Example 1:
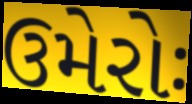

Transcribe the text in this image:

ઉમેરોઃ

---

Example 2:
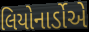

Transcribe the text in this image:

લિયોનાર્ડોએ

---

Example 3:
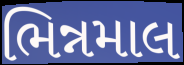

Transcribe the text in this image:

ભિન્નમાલ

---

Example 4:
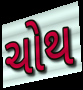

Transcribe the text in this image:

ચોથ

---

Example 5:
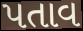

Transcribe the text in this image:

પતાવ